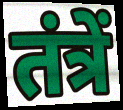
तंत्रें